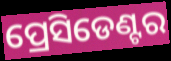
ପ୍ରେସିଡେଣ୍ଟର